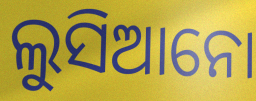
ଲୁସିଆନୋ